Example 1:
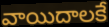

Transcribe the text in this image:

వాయిదాలకే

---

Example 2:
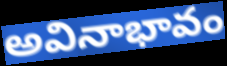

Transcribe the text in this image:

అవినాభావం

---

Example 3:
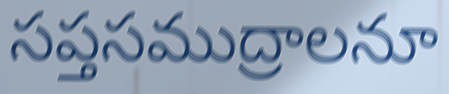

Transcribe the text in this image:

సప్తసముద్రాలనూ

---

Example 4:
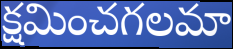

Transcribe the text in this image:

క్షమించగలమా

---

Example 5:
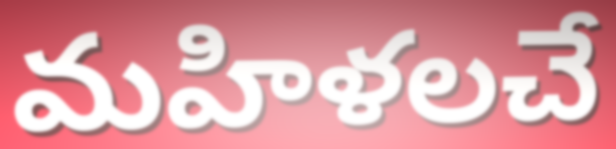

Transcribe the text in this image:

మహిళలచే